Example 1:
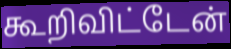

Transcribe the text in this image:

கூறிவிட்டேன்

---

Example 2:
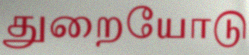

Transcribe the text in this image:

துறையோடு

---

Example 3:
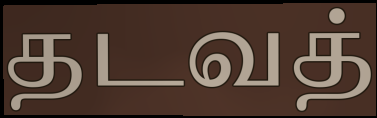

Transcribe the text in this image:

தடவத்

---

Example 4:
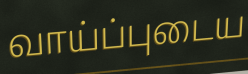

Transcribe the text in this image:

வாய்ப்புடைய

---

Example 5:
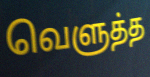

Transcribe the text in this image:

வெளுத்த